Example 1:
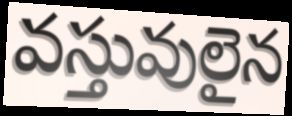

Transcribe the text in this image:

వస్తువులైన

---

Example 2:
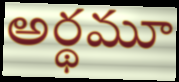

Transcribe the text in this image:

అర్థమూ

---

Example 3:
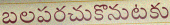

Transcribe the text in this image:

బలపరచుకొనుటకు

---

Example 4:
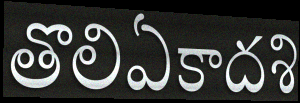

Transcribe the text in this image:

తొలిఏకాదశి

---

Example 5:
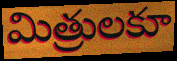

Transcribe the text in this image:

మిత్రులకూ